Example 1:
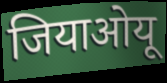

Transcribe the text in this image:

जियाओयू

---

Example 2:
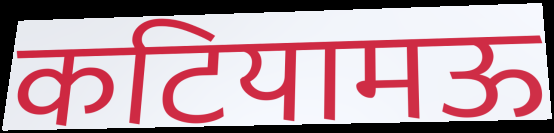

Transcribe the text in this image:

कटियामऊ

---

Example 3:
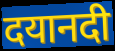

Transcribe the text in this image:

दयानदी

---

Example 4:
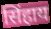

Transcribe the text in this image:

सिंहाय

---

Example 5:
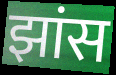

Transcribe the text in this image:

झांस